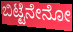
ಬಿಟ್ಟೆನೇನೋ